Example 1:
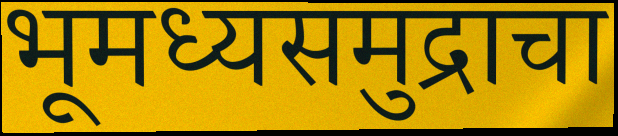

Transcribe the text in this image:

भूमध्यसमुद्राचा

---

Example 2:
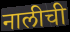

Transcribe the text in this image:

नालीची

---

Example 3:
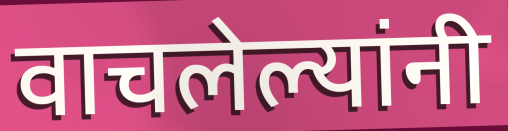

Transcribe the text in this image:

वाचलेल्यांनी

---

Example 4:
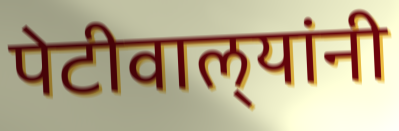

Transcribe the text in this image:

पेटीवाल्यांनी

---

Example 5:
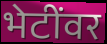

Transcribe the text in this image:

भेटींवर